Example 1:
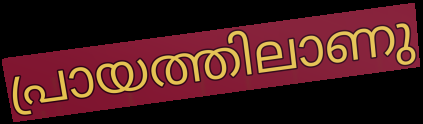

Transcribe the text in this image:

പ്രായത്തിലാണു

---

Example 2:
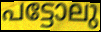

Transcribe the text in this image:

പട്ടോലു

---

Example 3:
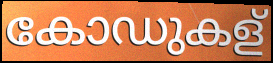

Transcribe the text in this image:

കോഡുകള്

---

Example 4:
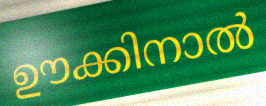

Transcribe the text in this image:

ഊക്കിനാൽ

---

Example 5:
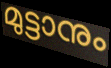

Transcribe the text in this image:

മുട്ടാനും